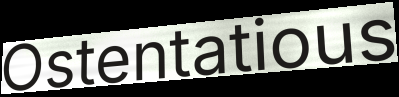
Ostentatious